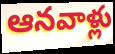
ఆనవాళ్లు